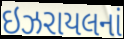
ઇઝરાયલનાં